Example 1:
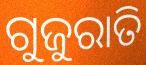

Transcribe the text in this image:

ଗୁଜୁରାତି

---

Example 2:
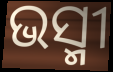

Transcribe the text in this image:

ଭସ୍ମୀ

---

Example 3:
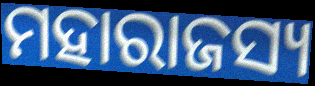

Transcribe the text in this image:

ମହାରାଜସ୍ୟ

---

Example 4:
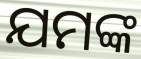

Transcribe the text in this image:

ଯମଙ୍କ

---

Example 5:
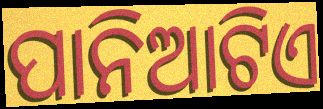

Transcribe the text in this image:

ପାନିଆଟିଏ